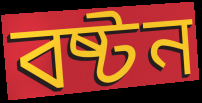
বষ্টন